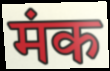
मंक